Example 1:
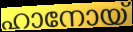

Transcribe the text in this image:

ഹാനോയ്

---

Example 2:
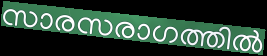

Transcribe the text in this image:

സാരസരാഗത്തിൽ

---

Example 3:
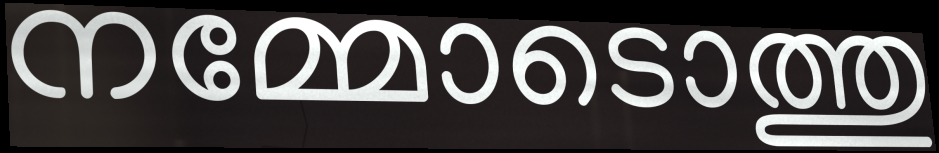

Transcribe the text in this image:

നമ്മോടൊത്തു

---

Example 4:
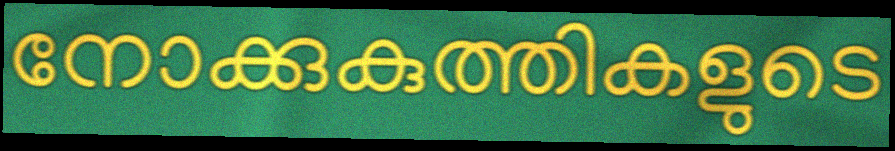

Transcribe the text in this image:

നോക്കുകുത്തികളുടെ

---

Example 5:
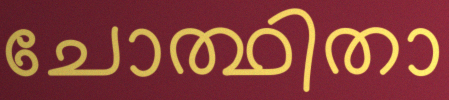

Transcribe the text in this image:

ചോത്ഥിതാ